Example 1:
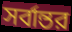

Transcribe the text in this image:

সর্বান্তর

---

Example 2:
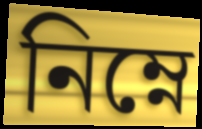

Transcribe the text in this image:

নিম্নে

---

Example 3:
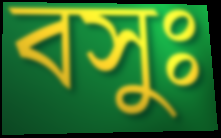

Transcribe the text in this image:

বসুঃ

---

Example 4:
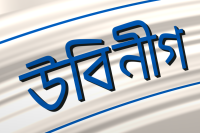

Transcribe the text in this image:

উবিনীগ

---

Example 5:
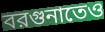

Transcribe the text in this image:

বরগুনাতেও